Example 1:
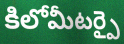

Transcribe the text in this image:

కిలోమీటర్పై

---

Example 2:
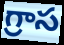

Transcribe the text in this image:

గ్రాస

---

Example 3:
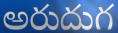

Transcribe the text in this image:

అరుదుగ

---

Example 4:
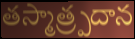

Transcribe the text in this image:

తస్మాత్ర్పదాన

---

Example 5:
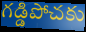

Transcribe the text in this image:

గడ్డిపోచకు